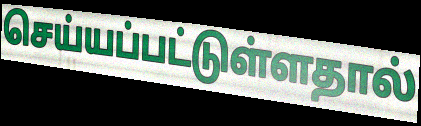
செய்யப்பட்டுள்ளதால்